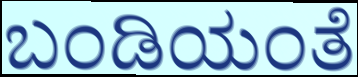
ಬಂಡಿಯಂತೆ